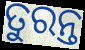
ତୁରନ୍ତ